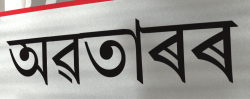
অৱতাৰৰ